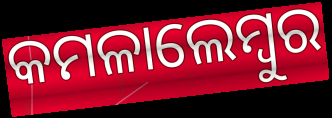
କମଳାଲେମ୍ବୁର